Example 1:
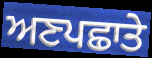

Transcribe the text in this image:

ਅਣਪਛਾਤੇ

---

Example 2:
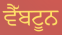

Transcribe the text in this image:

ਵੈੱਬਟੂਨ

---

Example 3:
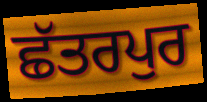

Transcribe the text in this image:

ਛੱਤਰਪੁਰ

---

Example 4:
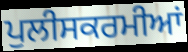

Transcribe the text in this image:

ਪੁਲੀਸਕਰਮੀਆਂ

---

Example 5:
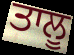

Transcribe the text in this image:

ਤਾਲੂ